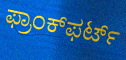
ಫ್ರಾಂಕ್‌ಫರ್ಟ್